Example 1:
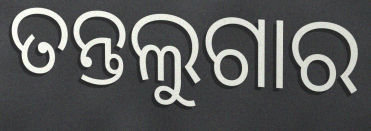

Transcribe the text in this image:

ତନ୍ତଲୁଗାର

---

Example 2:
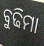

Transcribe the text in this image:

ବୁଢିମା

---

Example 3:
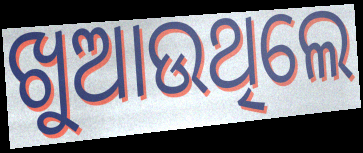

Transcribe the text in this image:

ଖୁଆଉଥିଲେ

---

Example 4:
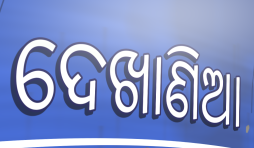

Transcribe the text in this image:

ଦେଖାଣିଆ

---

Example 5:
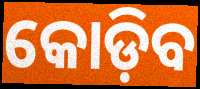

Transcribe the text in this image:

କୋଡ଼ିବ